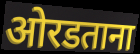
ओरडताना